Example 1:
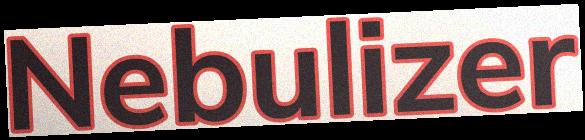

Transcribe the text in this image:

Nebulizer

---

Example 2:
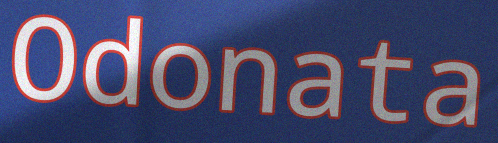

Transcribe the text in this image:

Odonata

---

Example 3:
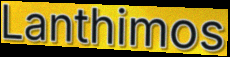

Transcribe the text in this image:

Lanthimos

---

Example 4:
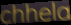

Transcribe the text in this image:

chhela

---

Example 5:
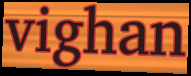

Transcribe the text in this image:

vighan